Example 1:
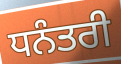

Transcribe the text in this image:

ਧਨੰਤਰੀ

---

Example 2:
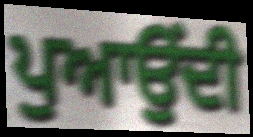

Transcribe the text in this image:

ਪੁਆਉਂਦੀ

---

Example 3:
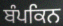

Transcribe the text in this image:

ਬੰਪਕਿਨ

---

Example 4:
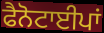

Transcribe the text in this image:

ਫੈਨੋਟਾਈਪਾਂ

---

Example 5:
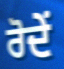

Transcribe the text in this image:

ਰੋਦੇਂ